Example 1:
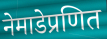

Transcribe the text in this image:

नेमाडेप्रणित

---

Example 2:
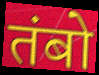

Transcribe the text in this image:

तंबो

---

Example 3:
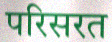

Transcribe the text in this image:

परिसरत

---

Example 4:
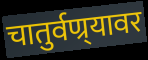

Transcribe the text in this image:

चातुर्वण्र्यावर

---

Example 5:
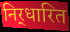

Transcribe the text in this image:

निर्धारित